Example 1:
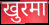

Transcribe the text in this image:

खुरमा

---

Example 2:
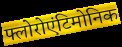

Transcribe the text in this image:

फ्लोरोएंटिमोनिक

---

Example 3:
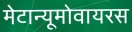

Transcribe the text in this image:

मेटान्यूमोवायरस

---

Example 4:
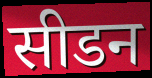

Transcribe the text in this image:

सीडन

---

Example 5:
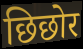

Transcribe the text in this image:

छिछोर